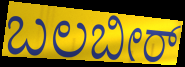
ಬಲಬೀರ್